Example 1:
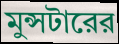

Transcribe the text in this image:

মুন্সটারের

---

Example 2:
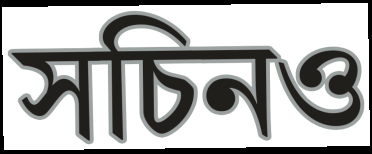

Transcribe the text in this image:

সচিনও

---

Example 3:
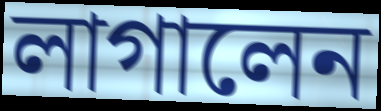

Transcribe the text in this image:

লাগালেন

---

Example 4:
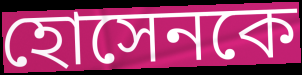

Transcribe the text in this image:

হোসেনকে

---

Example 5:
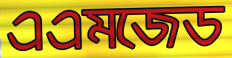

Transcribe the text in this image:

এএমজেড